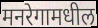
मनरेगामधील